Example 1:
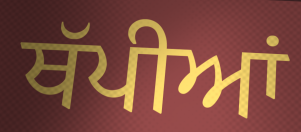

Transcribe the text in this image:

ਥੱਪੀਆਂ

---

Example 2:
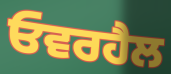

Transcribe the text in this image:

ਓਵਰਹੈਲ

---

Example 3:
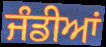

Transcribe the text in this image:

ਜੰਡੀਆਂ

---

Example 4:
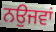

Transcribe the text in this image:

ਨਉਜਵਾਂ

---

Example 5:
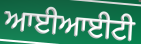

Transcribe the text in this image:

ਆਈਆਈਟੀ